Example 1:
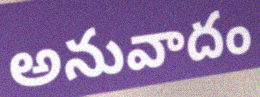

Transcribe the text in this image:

అనువాదం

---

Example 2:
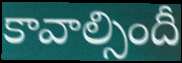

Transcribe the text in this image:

కావాల్సిందీ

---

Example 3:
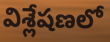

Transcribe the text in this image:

విశ్లేషణలో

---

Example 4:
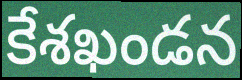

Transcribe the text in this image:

కేశఖండన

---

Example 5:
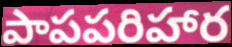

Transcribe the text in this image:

పాపపరిహార